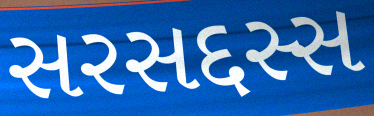
સરસદ્દસ્સ